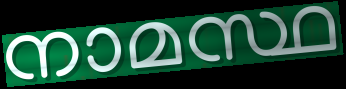
നാമസ്ഥ